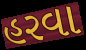
હરવા